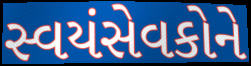
સ્વયંસેવકોને